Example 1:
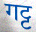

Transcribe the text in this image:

गट्ट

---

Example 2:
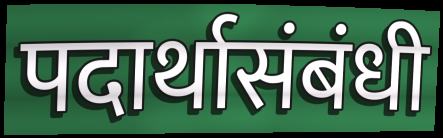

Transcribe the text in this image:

पदार्थासंबंधी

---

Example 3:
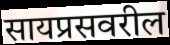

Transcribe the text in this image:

सायप्रसवरील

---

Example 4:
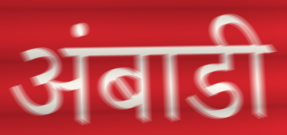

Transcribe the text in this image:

अंबाडी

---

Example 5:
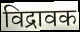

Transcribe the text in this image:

विद्रावक